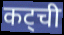
कट्ची